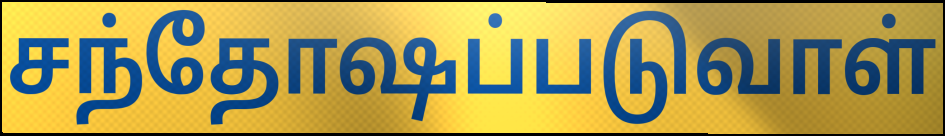
சந்தோஷப்படுவாள்